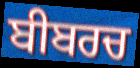
ਬੀਬਰਚ